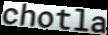
chotla